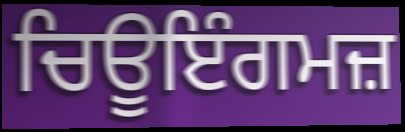
ਚਿਊਇੰਗਮਜ਼